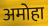
अमोहा